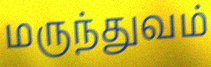
மருந்துவம்